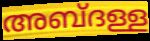
അബ്ദള്ള